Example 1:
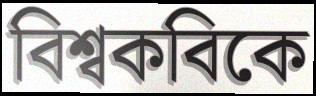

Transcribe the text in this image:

বিশ্বকবিকে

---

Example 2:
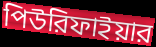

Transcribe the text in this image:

পিউরিফাইয়ার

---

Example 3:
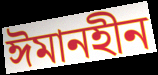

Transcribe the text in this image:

ঈমানহীন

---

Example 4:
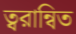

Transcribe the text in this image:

ত্বরান্বিত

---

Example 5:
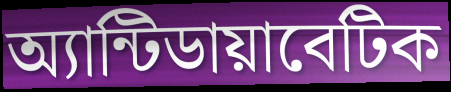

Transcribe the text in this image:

অ্যান্টিডায়াবেটিক